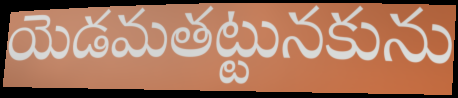
యెడమతట్టునకును